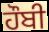
ਹੌਬੀ